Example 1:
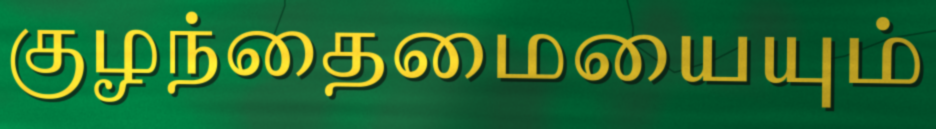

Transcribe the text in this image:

குழந்தைமையையும்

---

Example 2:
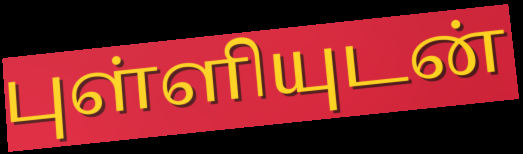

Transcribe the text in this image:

புள்ளியுடன்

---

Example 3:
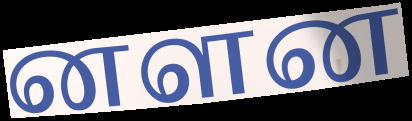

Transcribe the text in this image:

னளன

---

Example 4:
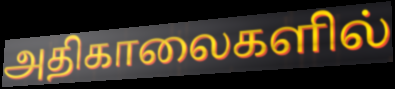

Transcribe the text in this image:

அதிகாலைகளில்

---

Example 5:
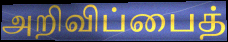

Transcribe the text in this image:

அறிவிப்பைத்